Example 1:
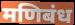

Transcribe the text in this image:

मणिबंध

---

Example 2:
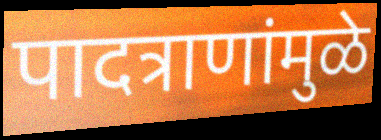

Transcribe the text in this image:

पादत्राणांमुळे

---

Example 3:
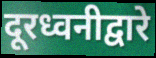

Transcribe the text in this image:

दूरध्वनीद्वारे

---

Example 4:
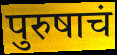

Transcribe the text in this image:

पुरुषाचं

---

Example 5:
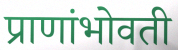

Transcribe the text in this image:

प्राणांभोवती